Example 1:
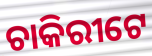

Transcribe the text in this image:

ଚାକିରୀଟେ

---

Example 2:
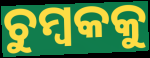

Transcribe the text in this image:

ଚୁମ୍ବକକୁ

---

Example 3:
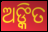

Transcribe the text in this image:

ଅଙ୍କିତ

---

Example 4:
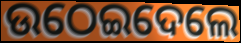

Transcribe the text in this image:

ଉଠେଇଦେଲେ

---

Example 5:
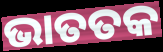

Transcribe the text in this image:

ଭାତତକ